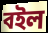
বইল